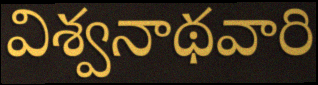
విశ్వనాథవారి